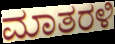
ಮಾತರಳಿ